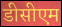
डीसीएम